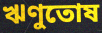
ঋণুতোষ